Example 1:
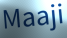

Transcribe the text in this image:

Maaji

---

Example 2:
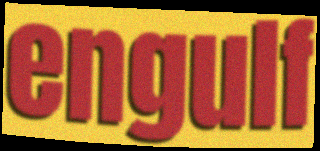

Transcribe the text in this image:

engulf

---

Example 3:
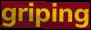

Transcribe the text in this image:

griping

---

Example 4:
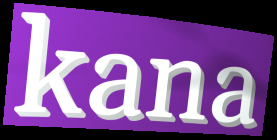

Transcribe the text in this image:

kana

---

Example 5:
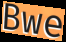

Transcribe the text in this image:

Bwe